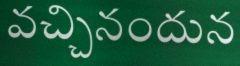
వచ్చినందున